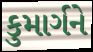
કુમાર્ગને